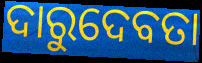
ଦାରୁଦେବତା